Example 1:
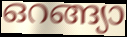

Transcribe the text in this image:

ഒറങ്ങ്യാ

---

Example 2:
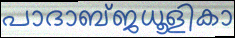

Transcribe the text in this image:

പാദാബ്ജധൂളികാ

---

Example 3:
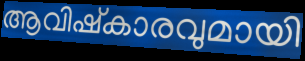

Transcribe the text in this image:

ആവിഷ്കാരവുമായി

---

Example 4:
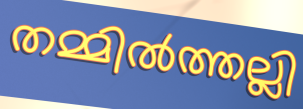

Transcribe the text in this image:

തമ്മിൽത്തല്ലി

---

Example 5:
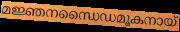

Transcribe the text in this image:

മജ്ഞനന്ധൈഡമൂകനായ്